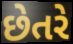
છેતરે